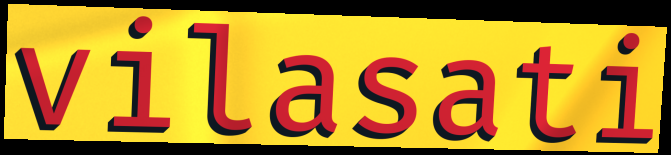
vilasati